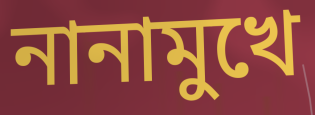
নানামুখে